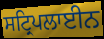
ਸਟ੍ਰਿਪਲਾਈਨ